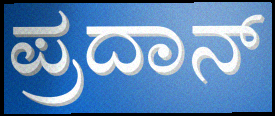
ಪ್ರದಾನ್